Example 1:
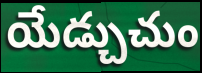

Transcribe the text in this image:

యేడ్చుచుం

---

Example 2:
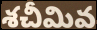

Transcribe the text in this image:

శచీమివ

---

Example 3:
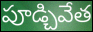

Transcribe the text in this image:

పూడ్చివేత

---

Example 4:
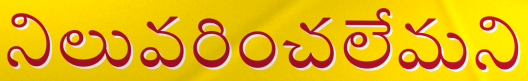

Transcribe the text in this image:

నిలువరించలేమని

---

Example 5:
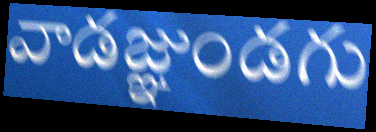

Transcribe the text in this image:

వాడజ్ఞుండగు